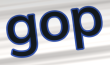
gop